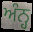
ਅੰਨ੍ਹ